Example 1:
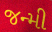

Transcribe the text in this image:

જન્મી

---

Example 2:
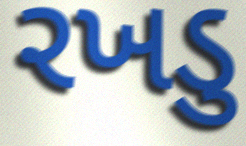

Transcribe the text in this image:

રખડુ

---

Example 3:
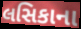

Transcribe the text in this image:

લસિકાના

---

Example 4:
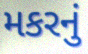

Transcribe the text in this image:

મકરનું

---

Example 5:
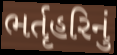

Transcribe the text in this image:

ભર્તૃહરિનું